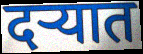
दऱ्यात